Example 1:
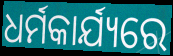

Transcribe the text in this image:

ଧର୍ମକାର୍ଯ୍ୟରେ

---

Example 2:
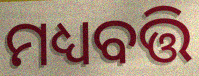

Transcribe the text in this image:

ମଧ୍ୟବତ୍ତି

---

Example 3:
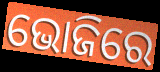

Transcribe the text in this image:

ଭୋଜିରେ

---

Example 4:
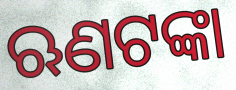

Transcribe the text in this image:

ଋଣଟଙ୍କା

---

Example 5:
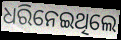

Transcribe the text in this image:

ଧରିନେଇଥିଲେ